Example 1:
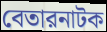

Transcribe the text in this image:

বেতারনাটক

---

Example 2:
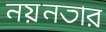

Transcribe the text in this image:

নয়নতার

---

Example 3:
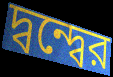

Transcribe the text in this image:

দ্বন্দ্বের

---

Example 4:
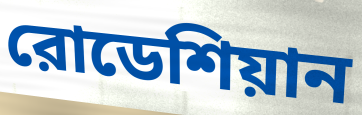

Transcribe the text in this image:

রোডেশিয়ান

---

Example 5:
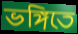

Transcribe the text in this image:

ভঙ্গিতে